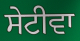
ਸੇਟੀਵਾ